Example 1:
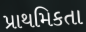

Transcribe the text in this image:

પ્રાથમિકતા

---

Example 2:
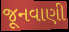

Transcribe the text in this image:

જૂનવાણી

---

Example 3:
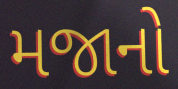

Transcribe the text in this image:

મજાનો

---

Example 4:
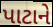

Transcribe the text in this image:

પાટાને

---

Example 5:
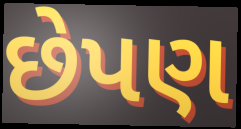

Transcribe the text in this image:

છેપણ